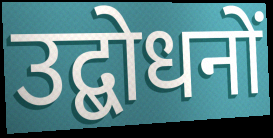
उद्बोधनों